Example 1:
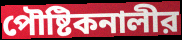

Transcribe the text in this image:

পৌষ্টিকনালীর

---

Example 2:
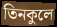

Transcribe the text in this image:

তিনকুলে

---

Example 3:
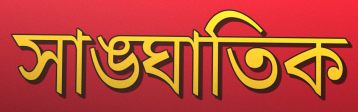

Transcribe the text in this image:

সাঙ্ঘাতিক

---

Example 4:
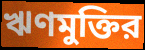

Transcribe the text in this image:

ঋণমুক্তির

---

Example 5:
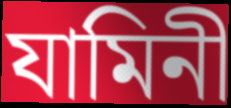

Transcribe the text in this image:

যামিনী